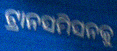
ଟ୍ରାନସମିସନକୁ